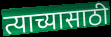
त्याच्यासाठी